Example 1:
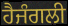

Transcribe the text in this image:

ਹੈਜੰਗਲੀ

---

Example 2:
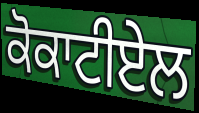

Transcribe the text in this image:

ਕੋਕਾਟੀਏਲ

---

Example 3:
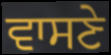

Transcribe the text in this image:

ਵਾਸਣੇ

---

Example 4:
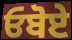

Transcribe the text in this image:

ਓਬੋਏ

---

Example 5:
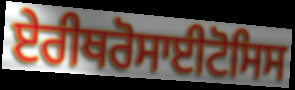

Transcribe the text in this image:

ਏਰੀਥਰੋਸਾਈਟੋਸਿਸ